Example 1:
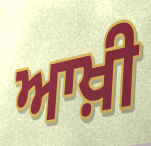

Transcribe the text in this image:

ਆਖ਼ੀ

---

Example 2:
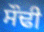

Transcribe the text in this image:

ਸੌਢੀ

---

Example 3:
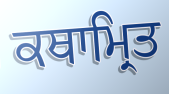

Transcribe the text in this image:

ਕਥਾਮ੍ਰਿਤ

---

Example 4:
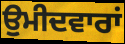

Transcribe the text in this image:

ਉੁਮੀਦਵਾਰਾਂ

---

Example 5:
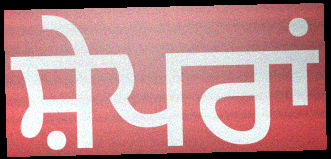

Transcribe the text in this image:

ਸ਼ੇਪਰਾਂ